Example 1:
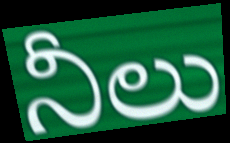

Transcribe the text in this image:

నీలు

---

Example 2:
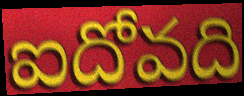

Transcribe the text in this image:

ఐదోవది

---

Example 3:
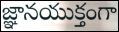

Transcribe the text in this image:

జ్ఞానయుక్తంగా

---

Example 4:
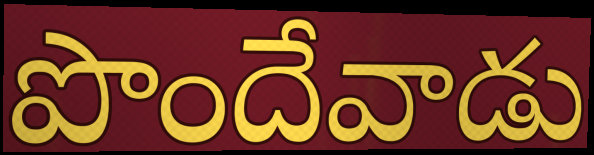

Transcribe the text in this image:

పొందేవాడు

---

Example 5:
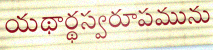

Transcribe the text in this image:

యథార్థస్వరూపమును